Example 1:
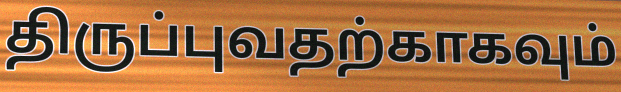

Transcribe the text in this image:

திருப்புவதற்காகவும்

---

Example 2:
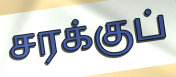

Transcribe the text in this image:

சரக்குப்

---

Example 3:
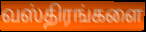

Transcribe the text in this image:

வஸ்திரங்களை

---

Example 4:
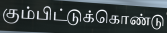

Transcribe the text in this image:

கும்பிட்டுக்கொண்டு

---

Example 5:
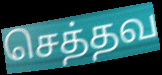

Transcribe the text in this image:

செத்தவ